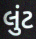
લુંટ